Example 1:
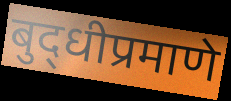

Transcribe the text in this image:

बुद्धीप्रमाणे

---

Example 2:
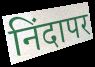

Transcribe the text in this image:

निंदापर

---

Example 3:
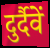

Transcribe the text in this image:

दुर्दैवें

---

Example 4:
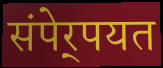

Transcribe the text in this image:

संपेर्पयत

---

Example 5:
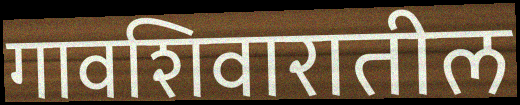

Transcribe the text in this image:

गावशिवारातील